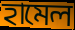
হামেল